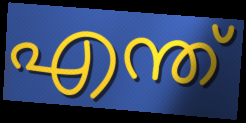
എന്ത്